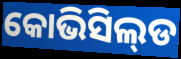
କୋଭିସିଲ୍‌ଡ